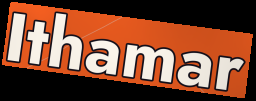
Ithamar